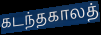
கடந்தகாலத்